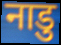
नाडु